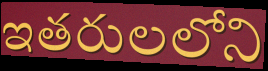
ఇతరులలోని